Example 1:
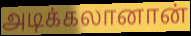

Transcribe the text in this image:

அடிக்கலானான்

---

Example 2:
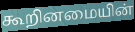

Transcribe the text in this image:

கூறினமையின்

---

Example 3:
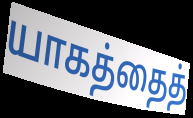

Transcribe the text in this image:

யாகத்தைத்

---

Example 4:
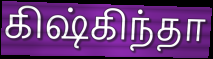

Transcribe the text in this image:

கிஷ்கிந்தா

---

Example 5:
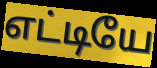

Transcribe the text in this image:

எட்டியே